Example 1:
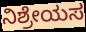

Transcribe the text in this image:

ನಿಶ್ರೇಯಸ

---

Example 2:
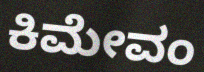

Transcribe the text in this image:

ಕಿಮೇವಂ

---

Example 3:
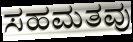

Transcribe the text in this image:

ಸಹಮತವು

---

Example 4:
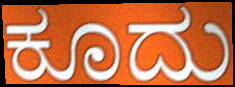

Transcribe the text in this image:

ಕೂದು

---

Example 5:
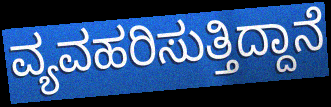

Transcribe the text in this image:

ವ್ಯವಹರಿಸುತ್ತಿದ್ದಾನೆ